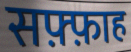
सफ़्फ़ाह